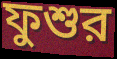
ফুশুর